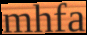
mhfa